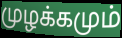
முழக்கமும்